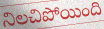
నిలచిపోయింది